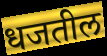
धजतील